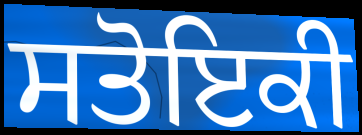
ਸਤੋਇਕੀ